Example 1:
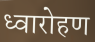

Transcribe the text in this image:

ध्वारोहण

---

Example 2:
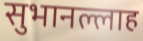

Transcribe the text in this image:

सुभानल्लाह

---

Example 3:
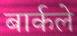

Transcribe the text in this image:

बार्कले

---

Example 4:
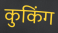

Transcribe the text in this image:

कुकिंग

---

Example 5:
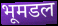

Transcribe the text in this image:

भूमडल